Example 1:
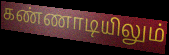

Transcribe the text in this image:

கண்ணாடியிலும்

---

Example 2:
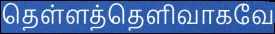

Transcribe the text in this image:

தெள்ளத்தெளிவாகவே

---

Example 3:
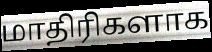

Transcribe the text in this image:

மாதிரிகளாக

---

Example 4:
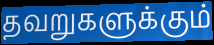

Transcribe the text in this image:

தவறுகளுக்கும்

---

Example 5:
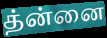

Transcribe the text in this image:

த்ன்னை